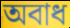
অবাধ